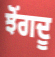
ਝੋਂਗਦੂ